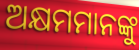
ଅକ୍ଷମମାନଙ୍କୁ